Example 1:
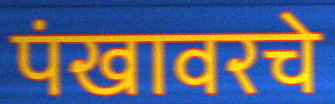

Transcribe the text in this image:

पंखावरचे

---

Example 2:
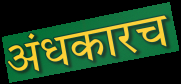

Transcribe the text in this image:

अंधकारच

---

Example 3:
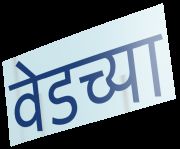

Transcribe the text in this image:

वेडच्या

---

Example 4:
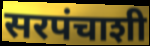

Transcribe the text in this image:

सरपंचाशी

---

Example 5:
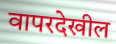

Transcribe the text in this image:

वापरदेखील